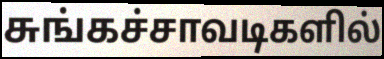
சுங்கச்சாவடிகளில்